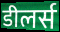
डीलर्स